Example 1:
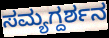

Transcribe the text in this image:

ಸಮ್ಯಗ್ದರ್ಶನ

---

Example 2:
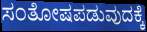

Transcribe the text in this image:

ಸಂತೋಷಪಡುವುದಕ್ಕೆ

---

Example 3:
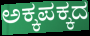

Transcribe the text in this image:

ಅಕ್ಕಪಕ್ಕದ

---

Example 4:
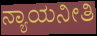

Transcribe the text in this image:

ನ್ಯಾಯನೀತಿ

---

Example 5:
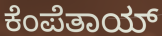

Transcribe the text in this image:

ಕೆಂಪೆತಾಯ್